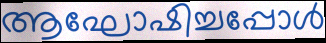
ആഘോഷിച്ചപ്പോൾ